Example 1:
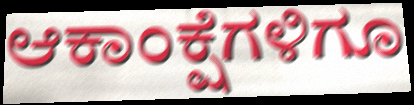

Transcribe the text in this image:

ಆಕಾಂಕ್ಷೆಗಳಿಗೂ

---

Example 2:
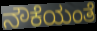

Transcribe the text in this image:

ನೌಕೆಯಂತೆ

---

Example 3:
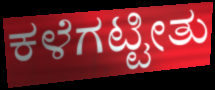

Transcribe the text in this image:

ಕಳೆಗಟ್ಟೀತು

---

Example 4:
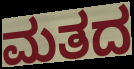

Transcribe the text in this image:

ಮತದ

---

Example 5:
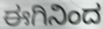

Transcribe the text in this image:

ಈಗಿನಿಂದ